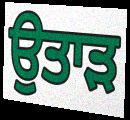
ਉਤਾਡ਼